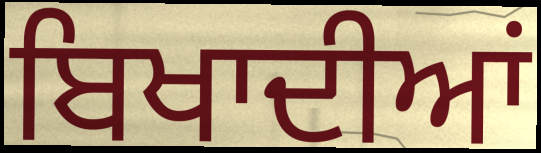
ਬਿਖਾਦੀਆਂ